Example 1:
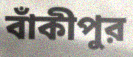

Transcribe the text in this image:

বাঁকীপুর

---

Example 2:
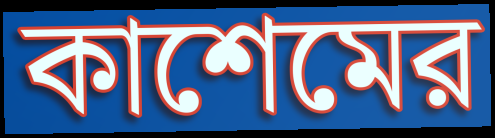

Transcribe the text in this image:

কাশেমের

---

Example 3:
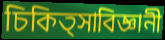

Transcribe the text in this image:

চিকিত্সাবিজ্ঞানী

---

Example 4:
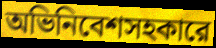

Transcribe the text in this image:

অভিনিবেশসহকারে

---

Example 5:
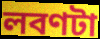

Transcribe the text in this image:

লবণটা